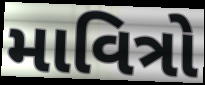
માવિત્રો